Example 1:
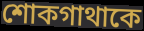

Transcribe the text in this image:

শোকগাথাকে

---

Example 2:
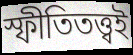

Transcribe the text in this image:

স্ফীতিতত্ত্বই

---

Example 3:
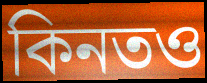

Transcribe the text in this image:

কিনতও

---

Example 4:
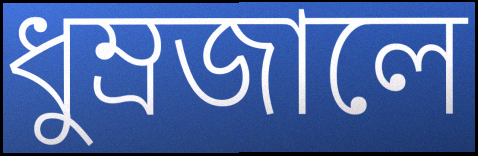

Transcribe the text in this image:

ধুম্রজালে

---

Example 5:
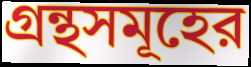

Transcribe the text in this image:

গ্রন্থসমূহের